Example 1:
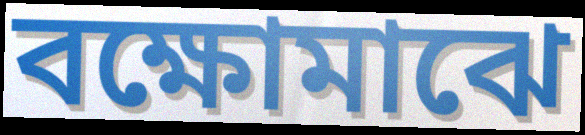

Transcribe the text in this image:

বক্ষোমাঝে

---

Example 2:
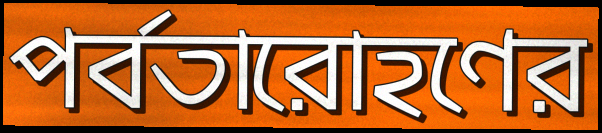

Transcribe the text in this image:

পর্বতারোহণের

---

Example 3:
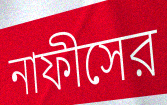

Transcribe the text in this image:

নাফীসের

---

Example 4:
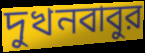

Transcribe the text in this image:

দুখনবাবুর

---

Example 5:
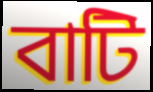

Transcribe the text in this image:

বাটি